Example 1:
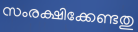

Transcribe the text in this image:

സംരക്ഷിക്കേണ്ടതു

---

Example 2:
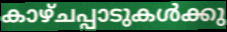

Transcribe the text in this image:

കാഴ്ചപ്പാടുകൾക്കു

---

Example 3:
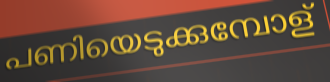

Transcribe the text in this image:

പണിയെടുക്കുമ്പോള്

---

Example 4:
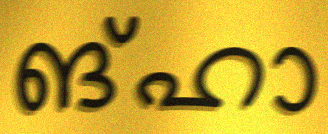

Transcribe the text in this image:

ങ്ഹാ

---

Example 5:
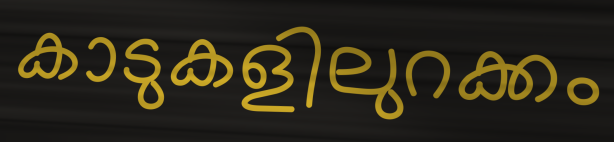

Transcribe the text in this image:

കാടുകളിലുറക്കം